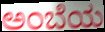
ಅಂಬೆಯ